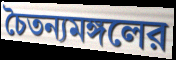
চৈতন্যমঙ্গলের